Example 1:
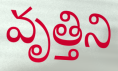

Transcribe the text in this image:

వృత్తిని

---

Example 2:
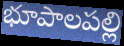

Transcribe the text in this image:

భూపాలపల్లి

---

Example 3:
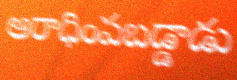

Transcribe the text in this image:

ఆరాధింపబడ్డాడు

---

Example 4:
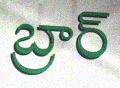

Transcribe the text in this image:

బ్రార్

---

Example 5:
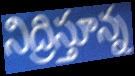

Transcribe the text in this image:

నిద్రిస్తూన్న